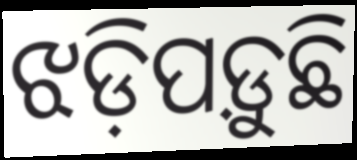
ଝଡ଼ିପଡ଼ୁଛି